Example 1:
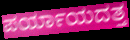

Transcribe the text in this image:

ಪರ್ಯಾಯದತ್ತ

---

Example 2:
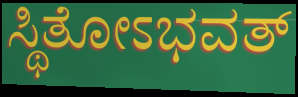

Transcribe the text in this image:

ಸ್ಥಿತೋಽಭವತ್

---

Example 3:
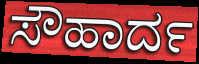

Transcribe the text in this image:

ಸೌಹಾರ್ದ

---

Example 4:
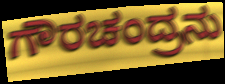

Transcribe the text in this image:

ಗೌರಚಂದ್ರನು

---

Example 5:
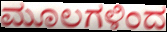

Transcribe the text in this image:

ಮೂಲಗಳಿಂದ